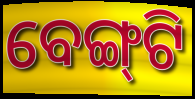
ବେଙ୍ଗ୍‌ଟି